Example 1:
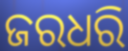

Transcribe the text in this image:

ଜରଧରି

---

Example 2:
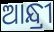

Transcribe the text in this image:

ଆନ୍ଧ୍ରୀ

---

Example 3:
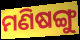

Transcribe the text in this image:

ମଣିଷଙ୍ଗୁ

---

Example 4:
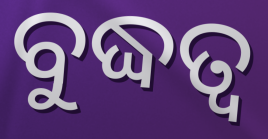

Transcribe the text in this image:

ବୁଦ୍ଧତ୍ଵ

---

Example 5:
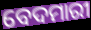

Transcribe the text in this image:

ବେଦମାରୀ